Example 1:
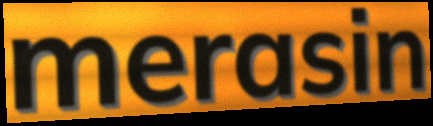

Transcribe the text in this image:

merasin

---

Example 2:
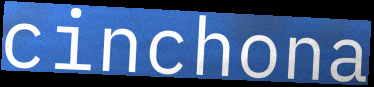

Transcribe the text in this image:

cinchona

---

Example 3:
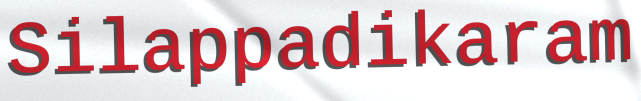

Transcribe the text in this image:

Silappadikaram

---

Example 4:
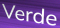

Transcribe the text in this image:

Verde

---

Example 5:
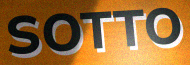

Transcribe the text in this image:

SOTTO